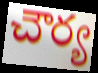
చౌర్య